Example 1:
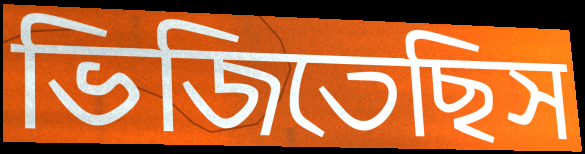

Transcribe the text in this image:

ভিজিতেছিস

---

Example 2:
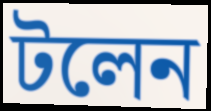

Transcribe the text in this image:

টলেন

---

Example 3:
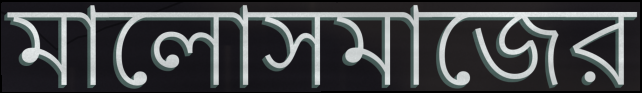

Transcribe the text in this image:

মালোসমাজের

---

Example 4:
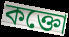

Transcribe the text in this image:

কক্তো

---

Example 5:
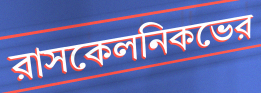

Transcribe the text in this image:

রাসকেলনিকভের